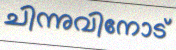
ചിന്നുവിനോട്